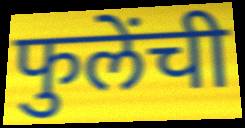
फुलेंची